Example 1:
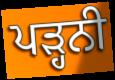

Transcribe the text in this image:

ਪੜ੍ਹਨੀ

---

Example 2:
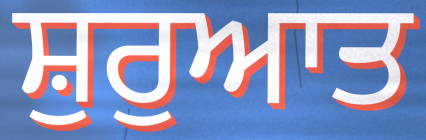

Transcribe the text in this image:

ਸ਼ੁਰੁਆਤ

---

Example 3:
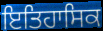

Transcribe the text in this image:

ਇਤਿਹਾਸਿਕ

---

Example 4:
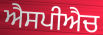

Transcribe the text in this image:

ਐਸਪੀਐਚ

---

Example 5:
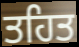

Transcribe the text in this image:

ਤਹਿਤ